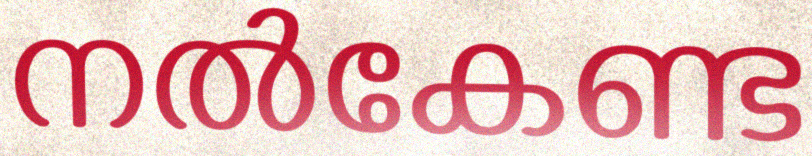
നൽകേണ്ട